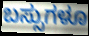
ಬಸ್ಸುಗಳೂ